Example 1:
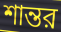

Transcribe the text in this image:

শান্তর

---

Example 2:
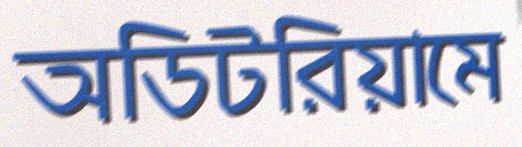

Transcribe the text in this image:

অডিটরিয়ামে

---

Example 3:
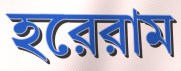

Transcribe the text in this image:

হরেরাম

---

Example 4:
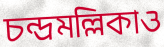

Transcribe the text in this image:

চন্দ্রমল্লিকাও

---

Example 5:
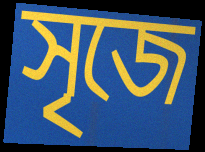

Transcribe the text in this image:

সৃজে